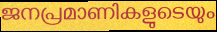
ജനപ്രമാണികളുടെയും